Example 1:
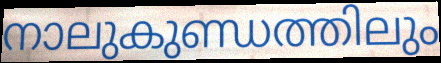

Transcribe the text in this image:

നാലുകുണ്ഡത്തിലും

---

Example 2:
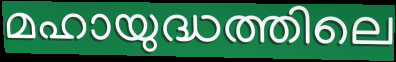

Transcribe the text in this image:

മഹായുദ്ധത്തിലെ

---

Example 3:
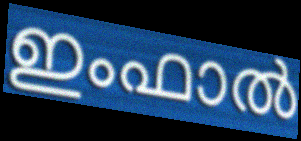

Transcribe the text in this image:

ഇംഫാൽ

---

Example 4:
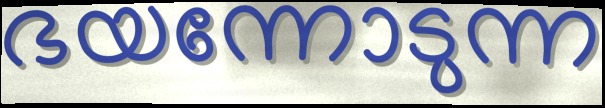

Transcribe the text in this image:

ഭയന്നോടുന്ന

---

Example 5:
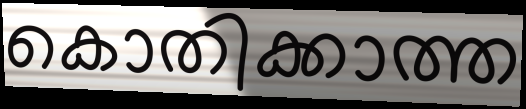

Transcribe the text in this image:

കൊതിക്കാത്ത